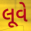
લૂવે